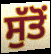
ਸੁੱਤੋਂ